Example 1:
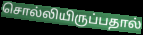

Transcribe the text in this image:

சொல்லியிருப்பதால்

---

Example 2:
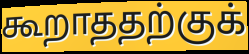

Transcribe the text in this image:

கூறாததற்குக்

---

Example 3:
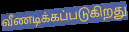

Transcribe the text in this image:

வீணடிக்கப்படுகிறது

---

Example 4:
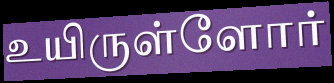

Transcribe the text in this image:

உயிருள்ளோர்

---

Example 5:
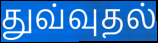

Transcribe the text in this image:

துவ்வுதல்